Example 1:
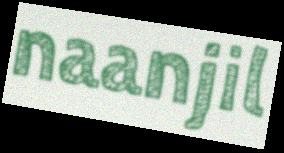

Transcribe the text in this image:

naanjil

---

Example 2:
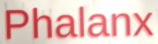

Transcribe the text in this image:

Phalanx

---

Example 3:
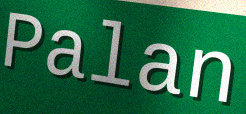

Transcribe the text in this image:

Palan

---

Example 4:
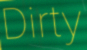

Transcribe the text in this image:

Dirty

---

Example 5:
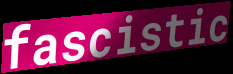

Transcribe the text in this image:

fascistic